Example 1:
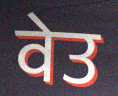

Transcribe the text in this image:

वेउ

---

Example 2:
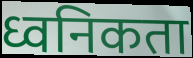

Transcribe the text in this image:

ध्वनिकता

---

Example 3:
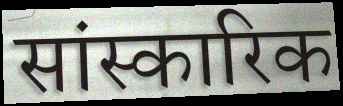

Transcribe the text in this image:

सांस्कारिक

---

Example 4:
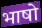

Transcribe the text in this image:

भाषो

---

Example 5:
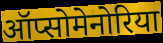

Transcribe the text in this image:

ऑप्सोमेनोरिया